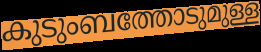
കുടുംബത്തോടുമുള്ള